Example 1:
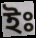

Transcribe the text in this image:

ইঃ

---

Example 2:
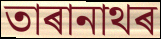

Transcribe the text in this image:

তাৰানাথৰ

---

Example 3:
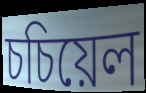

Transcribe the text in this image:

চচিয়েল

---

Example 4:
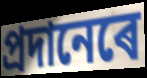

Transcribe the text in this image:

প্ৰদানেৰে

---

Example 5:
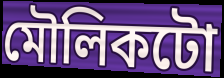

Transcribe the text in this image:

মৌলিকটো